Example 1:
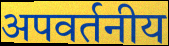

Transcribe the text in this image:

अपवर्तनीय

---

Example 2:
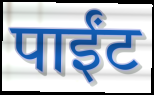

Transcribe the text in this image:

पाईंट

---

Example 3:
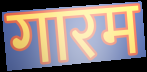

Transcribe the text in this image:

गारम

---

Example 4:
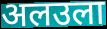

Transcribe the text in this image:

अलउला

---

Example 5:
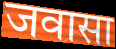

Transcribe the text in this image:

जवासा